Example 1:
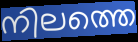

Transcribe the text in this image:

നിലത്തെ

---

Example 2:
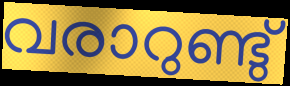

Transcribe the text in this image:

വരാറുണ്ടു്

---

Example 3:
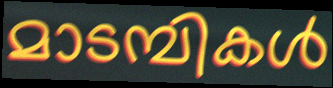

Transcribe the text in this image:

മാടമ്പികൾ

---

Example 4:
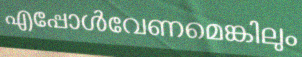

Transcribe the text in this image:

എപ്പോൾവേണമെങ്കിലും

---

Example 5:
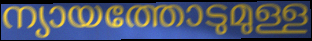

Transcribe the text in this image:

ന്യായത്തോടുമുള്ള